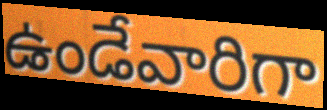
ఉండేవారిగా